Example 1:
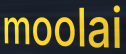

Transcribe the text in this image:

moolai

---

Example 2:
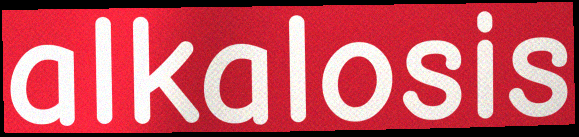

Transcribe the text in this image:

alkalosis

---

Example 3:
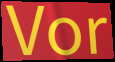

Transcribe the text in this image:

Vor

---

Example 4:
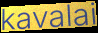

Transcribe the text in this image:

kavalai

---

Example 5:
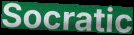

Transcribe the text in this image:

Socratic